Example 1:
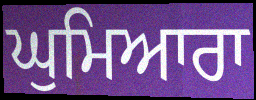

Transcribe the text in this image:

ਘੁਮਿਆਰਾ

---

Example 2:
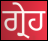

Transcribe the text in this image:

ਗ੍ਰੇਹ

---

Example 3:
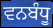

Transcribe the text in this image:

ਵਨਬੰਧੂ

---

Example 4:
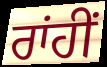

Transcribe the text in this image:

ਰਾਂਹੀਂ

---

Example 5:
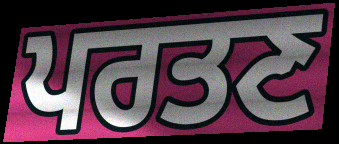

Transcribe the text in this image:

ਪਰਤਣ